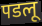
पडलू